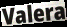
Valera